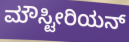
ಮೌಸ್ಟೀರಿಯನ್